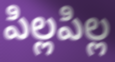
పిల్లపిల్ల